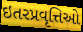
ઇતરપ્રવૃત્તિઓ